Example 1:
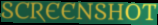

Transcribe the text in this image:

SCREENSHOT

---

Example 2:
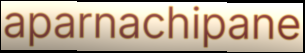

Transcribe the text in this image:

aparnachipane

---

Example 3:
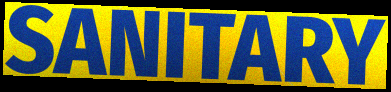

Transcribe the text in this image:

SANITARY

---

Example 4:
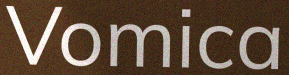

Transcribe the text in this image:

Vomica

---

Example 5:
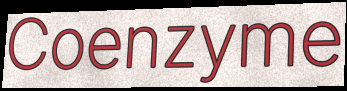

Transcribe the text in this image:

Coenzyme